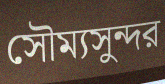
সৌম্যসুন্দর